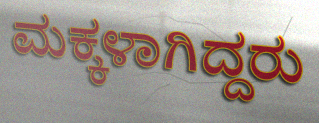
ಮಕ್ಕಳಾಗಿದ್ದರು